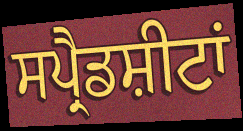
ਸਪ੍ਰੈਡਸ਼ੀਟਾਂ